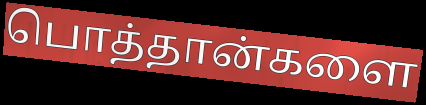
பொத்தான்களை